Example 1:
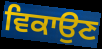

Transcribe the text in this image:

ਵਿਕਾਉਣ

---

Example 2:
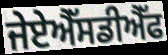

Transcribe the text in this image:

ਜੇਏਐੱਸਡੀਐੱਫ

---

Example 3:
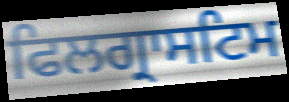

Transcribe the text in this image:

ਫਿਲਗ੍ਰਾਸਟਿਮ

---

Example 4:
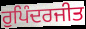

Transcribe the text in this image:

ਰੁਪਿੰਦਰਜੀਤ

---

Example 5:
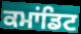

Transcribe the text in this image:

ਕਮਾਂਡਿਟ